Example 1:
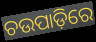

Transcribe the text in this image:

ଚଉପାଡ଼ିରେ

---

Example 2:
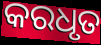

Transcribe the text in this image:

କରଧୃତ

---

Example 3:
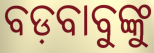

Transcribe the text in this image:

ବଡ଼ବାବୁଙ୍କୁ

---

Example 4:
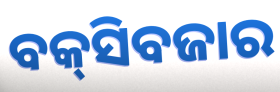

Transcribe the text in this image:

ବକ୍‍ସିବଜାର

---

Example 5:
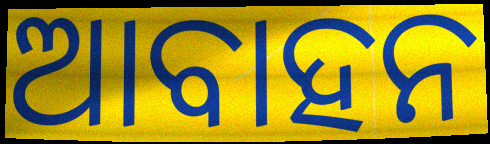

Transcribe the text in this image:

ଆବାହନ